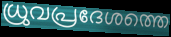
ധ്രുവപ്രദേശത്തെ